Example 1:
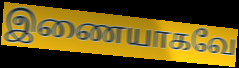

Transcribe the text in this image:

இணையாகவே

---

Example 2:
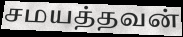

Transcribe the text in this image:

சமயத்தவன்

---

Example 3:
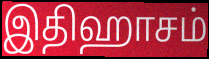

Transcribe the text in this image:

இதிஹாசம்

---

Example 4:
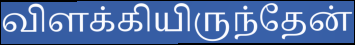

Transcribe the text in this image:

விளக்கியிருந்தேன்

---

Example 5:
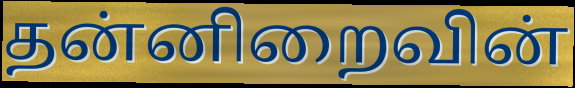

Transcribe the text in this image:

தன்னிறைவின்